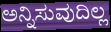
ಅನ್ನಿಸುವುದಿಲ್ಲ